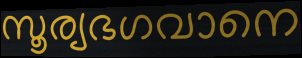
സൂര്യഭഗവാനെ